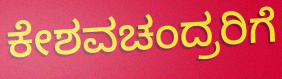
ಕೇಶವಚಂದ್ರರಿಗೆ